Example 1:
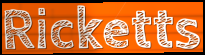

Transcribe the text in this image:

Ricketts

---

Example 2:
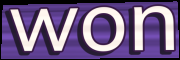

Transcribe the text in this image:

won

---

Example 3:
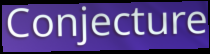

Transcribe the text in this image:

Conjecture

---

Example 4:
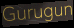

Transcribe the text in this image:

Gurugun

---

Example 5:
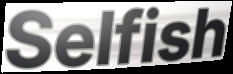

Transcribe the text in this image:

Selfish